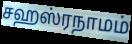
சஹஸ்ரநாமம்